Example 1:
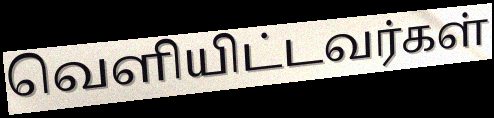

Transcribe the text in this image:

வெளியிட்டவர்கள்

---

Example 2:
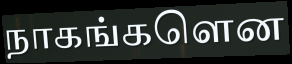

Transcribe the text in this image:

நாகங்களென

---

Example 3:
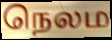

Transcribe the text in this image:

நெலம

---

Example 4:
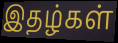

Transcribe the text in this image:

இதழ்கள்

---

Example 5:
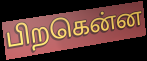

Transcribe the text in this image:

பிறகென்ன